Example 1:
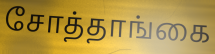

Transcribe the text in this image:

சோத்தாங்கை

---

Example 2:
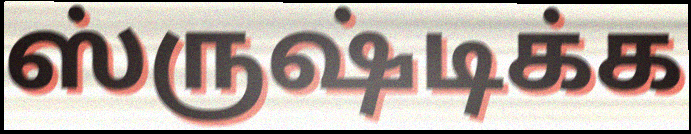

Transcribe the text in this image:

ஸ்ருஷ்டிக்க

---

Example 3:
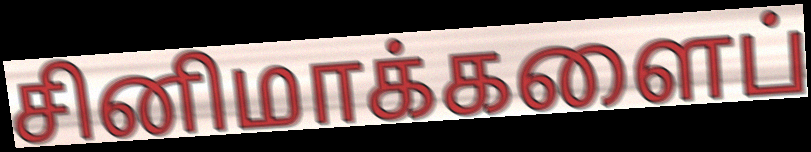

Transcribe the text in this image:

சினிமாக்களைப்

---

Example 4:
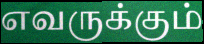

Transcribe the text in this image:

எவருக்கும்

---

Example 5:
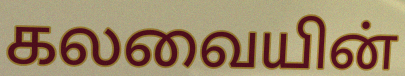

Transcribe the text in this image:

கலவையின்